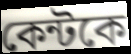
কেন্টকে